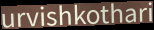
urvishkothari